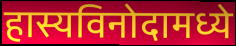
हास्यविनोदामध्ये